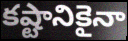
కష్టానికైనా